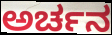
ಅರ್ಚನ